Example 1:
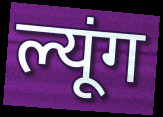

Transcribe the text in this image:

ल्यूंग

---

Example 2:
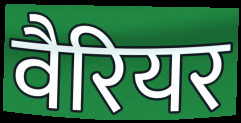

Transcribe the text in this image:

वैरियर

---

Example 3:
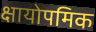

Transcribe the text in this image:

क्षायोपमिक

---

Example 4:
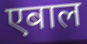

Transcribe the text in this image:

एबाल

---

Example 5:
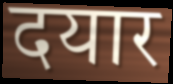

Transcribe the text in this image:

दयार